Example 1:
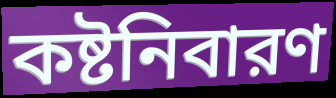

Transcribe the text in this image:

কষ্টনিবারণ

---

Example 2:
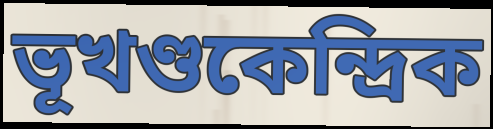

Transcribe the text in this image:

ভূখণ্ডকেন্দ্রিক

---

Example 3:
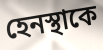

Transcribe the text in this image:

হেনস্থাকে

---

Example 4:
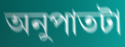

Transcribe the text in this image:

অনুপাতটা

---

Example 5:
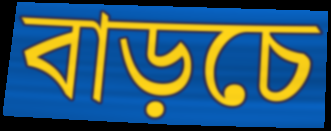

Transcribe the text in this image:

বাড়চে